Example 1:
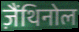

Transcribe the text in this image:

ज़ैंथिनोल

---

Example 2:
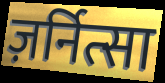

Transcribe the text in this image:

ज़र्नित्सा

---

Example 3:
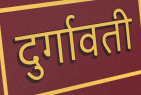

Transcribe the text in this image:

दुर्गावती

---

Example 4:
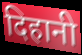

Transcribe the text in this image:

दिहानी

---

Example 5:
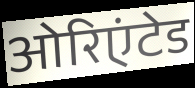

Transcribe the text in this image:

ओरिएंटेड